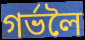
গৰ্ভলৈ